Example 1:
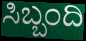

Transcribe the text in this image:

ಸಿಬ್ಬಂದಿ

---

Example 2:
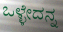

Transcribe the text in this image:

ಒಳ್ಳೇದನ್ನ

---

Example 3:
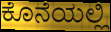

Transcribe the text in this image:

ಕೊನೆಯಲ್ಲಿ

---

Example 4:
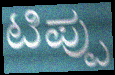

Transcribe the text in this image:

ಟಿಪ್ಪು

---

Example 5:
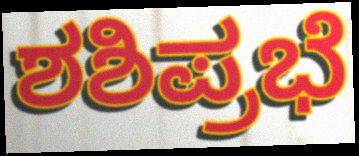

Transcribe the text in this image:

ಶಶಿಪ್ರಭೆ